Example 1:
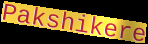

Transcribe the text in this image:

Pakshikere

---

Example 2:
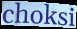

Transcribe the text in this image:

choksi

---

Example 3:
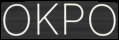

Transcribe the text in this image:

OKPO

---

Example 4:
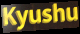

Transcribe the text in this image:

Kyushu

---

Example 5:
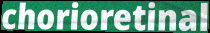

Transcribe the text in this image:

chorioretinal